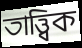
তাত্ত্বিক